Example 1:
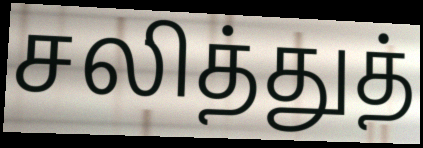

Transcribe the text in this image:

சலித்துத்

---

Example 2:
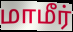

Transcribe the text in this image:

மாமீர்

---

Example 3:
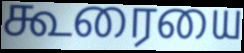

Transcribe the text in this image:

கூரையை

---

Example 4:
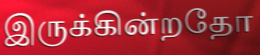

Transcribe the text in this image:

இருக்கின்றதோ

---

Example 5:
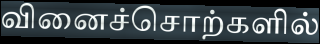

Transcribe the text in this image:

வினைச்சொற்களில்